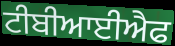
ਟੀਬੀਆਈਐਫ